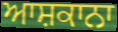
ਆਸ਼ਕਾਨਾ